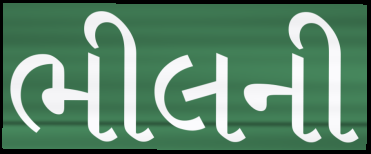
ભીલની